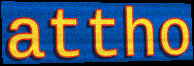
attho